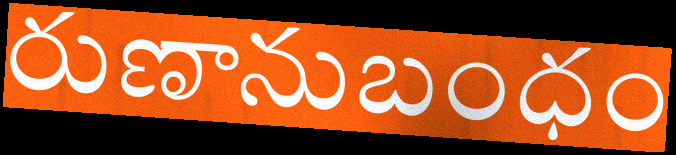
రుణానుబంధం